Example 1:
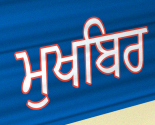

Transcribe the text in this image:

ਮੁਖਬਿਰ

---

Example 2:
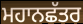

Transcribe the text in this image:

ਮਹਾਨਛੱਤਰ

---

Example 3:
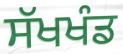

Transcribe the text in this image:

ਸੱਖਖੰਡ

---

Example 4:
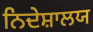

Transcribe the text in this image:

ਨਿਦੇਸ਼ਾਲਯ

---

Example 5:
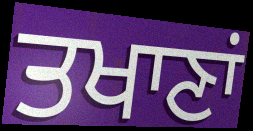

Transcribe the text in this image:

ਤਖਾਣਾਂ